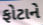
ફોટાને